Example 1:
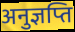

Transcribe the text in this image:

अनुज्ञप्ति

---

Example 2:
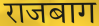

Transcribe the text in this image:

राजबाग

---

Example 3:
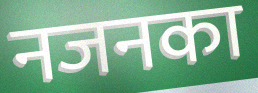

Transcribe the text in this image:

नजनका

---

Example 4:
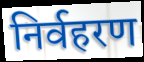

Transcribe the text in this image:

निर्वहरण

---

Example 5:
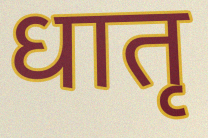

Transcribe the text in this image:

धातृ